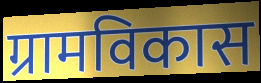
ग्रामविकास